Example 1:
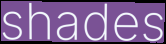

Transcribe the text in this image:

shades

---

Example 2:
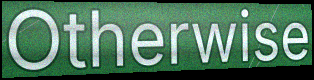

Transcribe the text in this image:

Otherwise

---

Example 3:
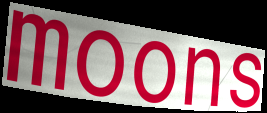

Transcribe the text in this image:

moons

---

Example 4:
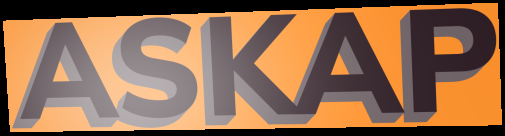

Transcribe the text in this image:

ASKAP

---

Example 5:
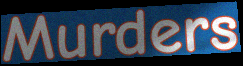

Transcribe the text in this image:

Murders